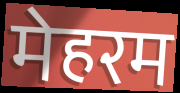
मेहरम